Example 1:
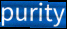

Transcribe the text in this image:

purity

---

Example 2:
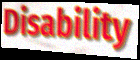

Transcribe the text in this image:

Disability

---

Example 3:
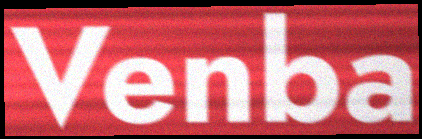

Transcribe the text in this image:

Venba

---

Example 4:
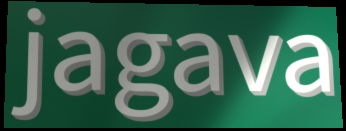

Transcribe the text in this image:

jagava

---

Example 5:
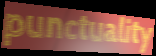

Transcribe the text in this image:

punctuality